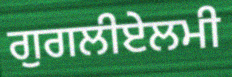
ਗੁਗਲੀਏਲਮੀ